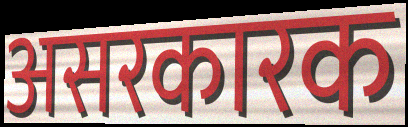
असरकारक